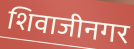
शिवाजीनगर